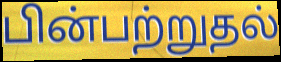
பின்பற்றுதல்